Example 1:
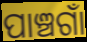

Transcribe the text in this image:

ପାଞ୍ଚଗାଁ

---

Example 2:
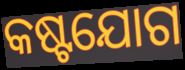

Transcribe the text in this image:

କଷ୍ଟଯୋଗ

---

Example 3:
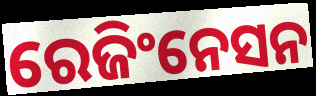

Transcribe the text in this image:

ରେଜିଂନେସନ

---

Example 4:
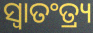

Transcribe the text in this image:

ସ୍ଵାତଂତ୍ର୍ୟ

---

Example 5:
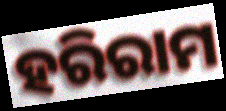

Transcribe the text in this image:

ହରିରାମ